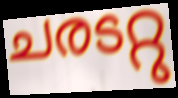
ചരടറ്റു